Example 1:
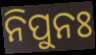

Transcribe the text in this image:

ନିପୁନଃ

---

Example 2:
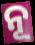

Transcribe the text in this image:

ନୂ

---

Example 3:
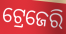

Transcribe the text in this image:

ଟ୍ରେଜେରି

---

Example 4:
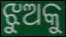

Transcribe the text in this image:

ଝୁଅକୁ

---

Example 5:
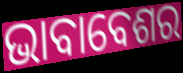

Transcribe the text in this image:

ଭାବାବେଶର